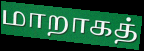
மாறாகத்